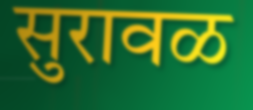
सुरावळ